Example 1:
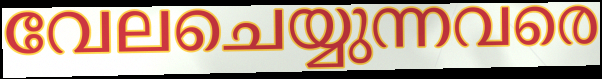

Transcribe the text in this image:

വേലചെയ്യുന്നവരെ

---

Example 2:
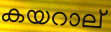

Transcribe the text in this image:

കയറാല്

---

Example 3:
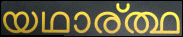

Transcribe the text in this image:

യഥാര്ത്ഥ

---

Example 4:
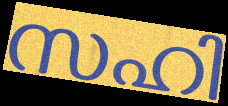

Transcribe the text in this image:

സഹി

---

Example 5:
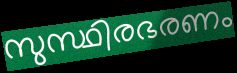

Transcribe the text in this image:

സുസ്ഥിരഭരണം